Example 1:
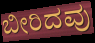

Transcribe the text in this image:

ಬೀರಿದವು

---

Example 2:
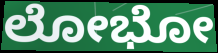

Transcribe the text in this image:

ಲೋಭೋ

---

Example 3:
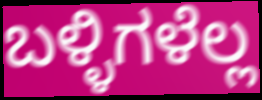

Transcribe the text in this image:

ಬಳ್ಳಿಗಳೆಲ್ಲ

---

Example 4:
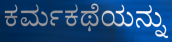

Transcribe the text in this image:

ಕರ್ಮಕಥೆಯನ್ನು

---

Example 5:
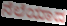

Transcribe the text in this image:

ನೆಲೆಯಾದ